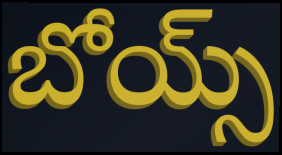
బోయ్స్